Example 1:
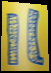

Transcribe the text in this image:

Il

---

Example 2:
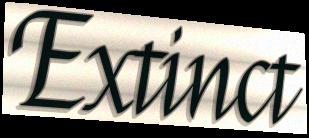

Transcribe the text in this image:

Extinct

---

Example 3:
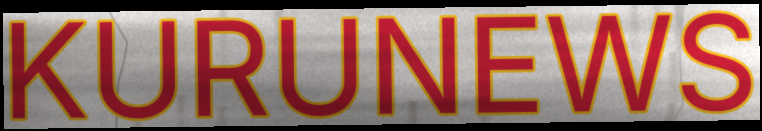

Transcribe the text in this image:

KURUNEWS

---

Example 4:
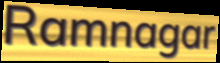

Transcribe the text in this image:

Ramnagar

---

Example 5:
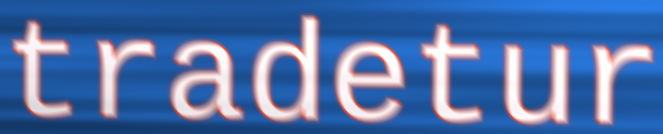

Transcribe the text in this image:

tradetur